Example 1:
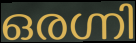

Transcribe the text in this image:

ഒരഗ്നി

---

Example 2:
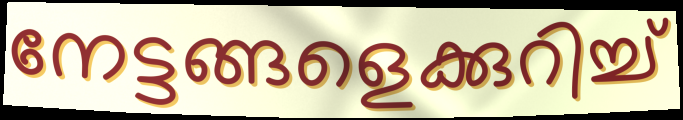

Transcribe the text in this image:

നേട്ടങ്ങളെക്കുറിച്ച്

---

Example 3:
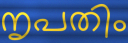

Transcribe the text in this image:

നൃപതിം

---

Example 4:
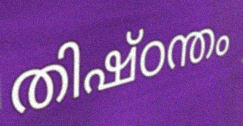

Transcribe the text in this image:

തിഷ്ഠന്തം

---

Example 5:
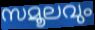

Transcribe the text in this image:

സമൂലവും